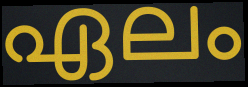
ഏലം